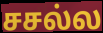
சசல்ல